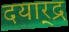
दयार्द्र